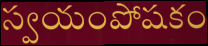
స్వయంపోషకం